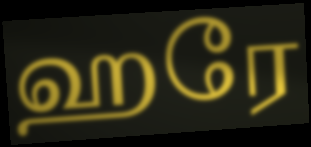
ஹரே